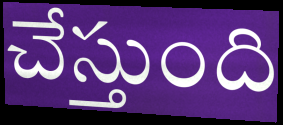
చేస్తుంది